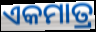
ଏକମାତ୍ର